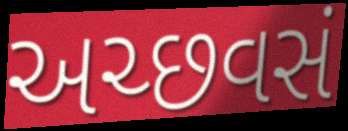
અચ્છવસં